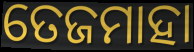
ତେଜମାହା